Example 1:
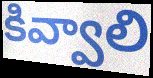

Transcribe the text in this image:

కివ్వాలి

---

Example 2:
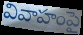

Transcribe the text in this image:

వివాహంపై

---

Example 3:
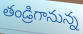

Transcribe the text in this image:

తండ్రిగానున్న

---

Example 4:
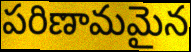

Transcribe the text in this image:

పరిణామమైన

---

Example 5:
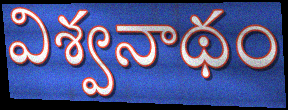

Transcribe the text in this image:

విశ్వనాథం